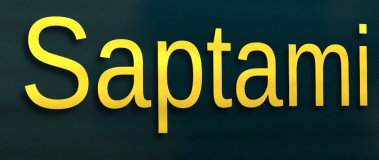
Saptami